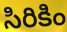
సిరికిం